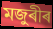
মজুৰীৰ